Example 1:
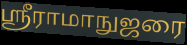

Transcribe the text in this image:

ஸ்ரீராமாநுஜரை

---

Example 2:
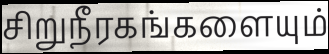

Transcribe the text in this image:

சிறுநீரகங்களையும்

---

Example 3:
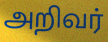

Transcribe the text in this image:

அறிவர்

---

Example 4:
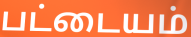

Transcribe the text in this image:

பட்டையம்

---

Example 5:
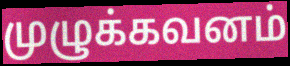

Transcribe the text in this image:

முழுக்கவனம்